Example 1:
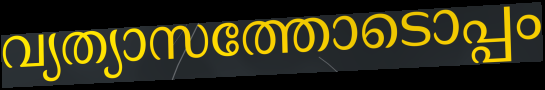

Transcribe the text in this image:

വ്യത്യാസത്തോടൊപ്പം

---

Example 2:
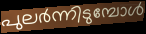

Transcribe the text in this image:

പുലർന്നിടുമ്പോൾ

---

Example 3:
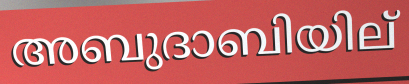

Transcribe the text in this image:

അബുദാബിയില്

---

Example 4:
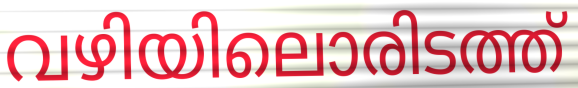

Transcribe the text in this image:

വഴിയിലൊരിടത്ത്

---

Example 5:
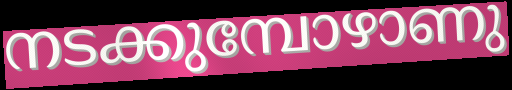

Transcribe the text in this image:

നടക്കുമ്പോഴാണു